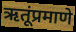
ऋतूंप्रमाणे